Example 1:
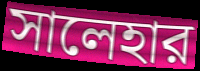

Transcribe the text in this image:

সালেহার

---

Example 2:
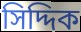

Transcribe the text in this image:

সিদ্দিক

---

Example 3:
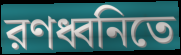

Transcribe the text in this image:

রণধ্বনিতে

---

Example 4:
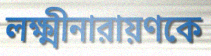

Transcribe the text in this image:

লক্ষ্মীনারায়ণকে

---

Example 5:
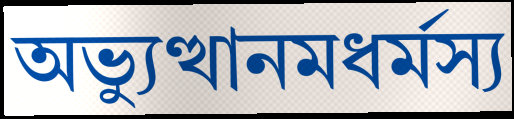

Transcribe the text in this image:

অভ্যুত্থানমধর্মস্য